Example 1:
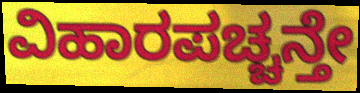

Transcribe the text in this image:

ವಿಹಾರಪಚ್ಚನ್ತೇ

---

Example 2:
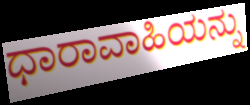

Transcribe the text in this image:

ಧಾರಾವಾಹಿಯನ್ನು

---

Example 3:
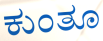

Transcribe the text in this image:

ಕುಂತೂ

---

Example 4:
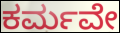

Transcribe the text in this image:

ಕರ್ಮವೇ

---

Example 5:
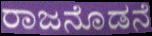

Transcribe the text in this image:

ರಾಜನೊಡನೆ